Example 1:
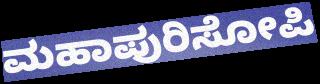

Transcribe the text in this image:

ಮಹಾಪುರಿಸೋಪಿ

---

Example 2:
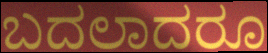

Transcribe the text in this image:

ಬದಲಾದರೂ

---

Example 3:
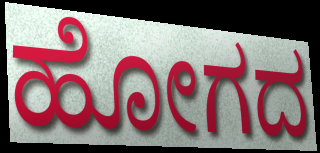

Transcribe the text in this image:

ಹೋಗದ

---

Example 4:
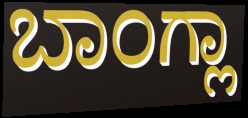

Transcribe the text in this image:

ಬಾಂಗ್ಲಾ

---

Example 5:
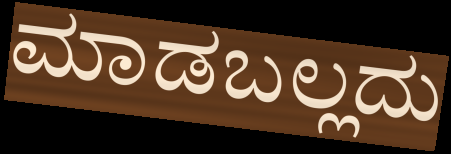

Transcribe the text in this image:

ಮಾಡಬಲ್ಲದು